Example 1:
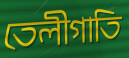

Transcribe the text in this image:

তেলীগাতি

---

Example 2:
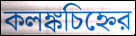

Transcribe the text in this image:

কলঙ্কচিহ্নের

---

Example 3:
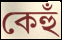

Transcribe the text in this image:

কেহুঁ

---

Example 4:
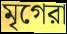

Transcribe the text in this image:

মৃগেরা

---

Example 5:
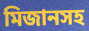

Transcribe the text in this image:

মিজানসহ